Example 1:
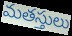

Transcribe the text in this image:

మతస్తులు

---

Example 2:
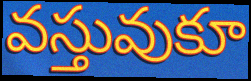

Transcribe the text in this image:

వస్తువుకూ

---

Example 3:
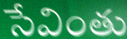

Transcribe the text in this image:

సేవింతు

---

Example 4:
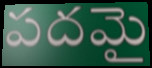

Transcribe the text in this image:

పదమై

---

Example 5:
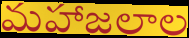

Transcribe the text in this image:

మహాజలాల